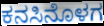
ಕನಸಿನೊಳಗ